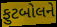
ફુટબોલને